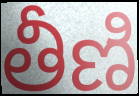
తీణి